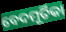
ବେଦମୂର୍ତିକା